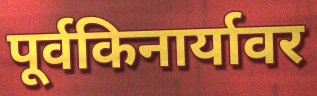
पूर्वकिनार्यावर